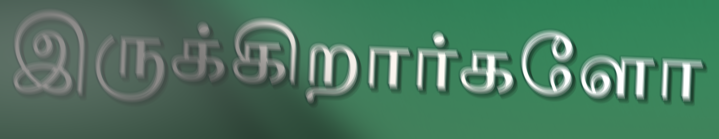
இருக்கிறார்களோ